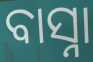
ବାସ୍ନା